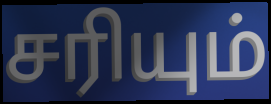
சரியும்